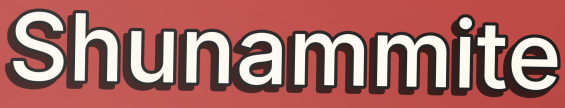
Shunammite